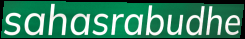
sahasrabudhe